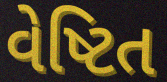
વેષ્ટિત